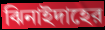
ঝিনাইদাহের